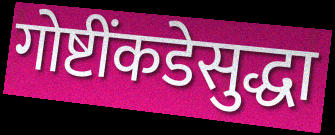
गोष्टींकडेसुद्धा